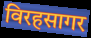
विरहसागर